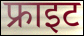
फ्राइट